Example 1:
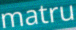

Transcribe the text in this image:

matru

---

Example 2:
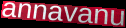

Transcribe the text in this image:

annavanu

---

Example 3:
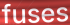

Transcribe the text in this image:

fuses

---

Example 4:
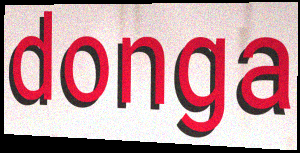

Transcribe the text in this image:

donga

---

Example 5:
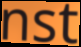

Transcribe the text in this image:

nst